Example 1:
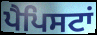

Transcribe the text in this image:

ਪੈਪਿਸਟਾਂ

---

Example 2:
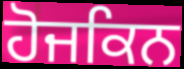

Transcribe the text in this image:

ਹੋਜਕਿਨ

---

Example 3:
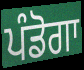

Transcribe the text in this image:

ਪੰਡੋਗਾ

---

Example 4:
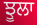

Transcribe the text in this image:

ਝੂਲਾ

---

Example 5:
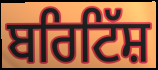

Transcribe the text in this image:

ਬਰਿਟਿੱਸ਼